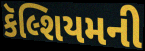
કૅલ્શિયમની